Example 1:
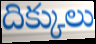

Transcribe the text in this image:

దిక్కులు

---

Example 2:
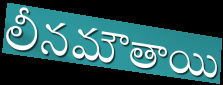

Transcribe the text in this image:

లీనమౌతాయి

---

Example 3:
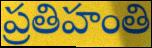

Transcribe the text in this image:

ప్రతిహంతి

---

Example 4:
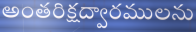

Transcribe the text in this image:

అంతరిక్షద్వారములను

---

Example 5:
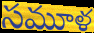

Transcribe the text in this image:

సమూళ